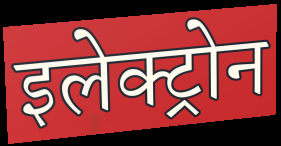
इलेक्ट्रोन